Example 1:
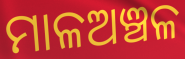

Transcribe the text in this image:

ମାଳଅଞ୍ଚଳ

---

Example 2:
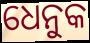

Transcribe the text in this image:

ଧେନୁକ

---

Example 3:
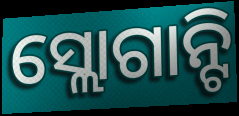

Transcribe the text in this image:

ସ୍ଲୋଗାନ୍ଟି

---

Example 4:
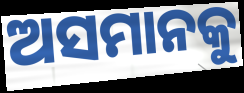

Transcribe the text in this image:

ଅସମାନକୁ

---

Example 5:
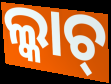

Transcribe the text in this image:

ଲ୍କାଚ୍